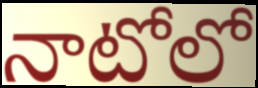
నాటోలో